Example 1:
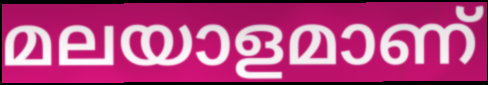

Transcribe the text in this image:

മലയാളമാണ്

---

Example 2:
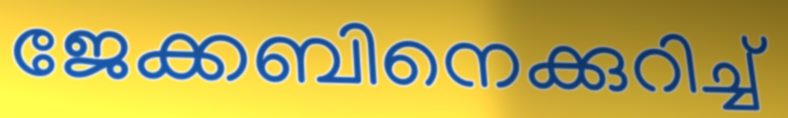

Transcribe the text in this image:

ജേക്കബിനെക്കുറിച്ച്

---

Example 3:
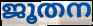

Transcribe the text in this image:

ജൂതന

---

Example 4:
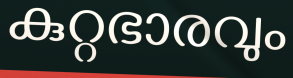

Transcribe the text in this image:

കുറ്റഭാരവും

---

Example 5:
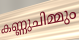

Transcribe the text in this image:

കണ്ണുചിമ്മും